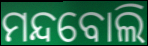
ମନ୍ଦବୋଲି